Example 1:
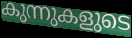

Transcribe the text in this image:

കുന്നുകളുടെ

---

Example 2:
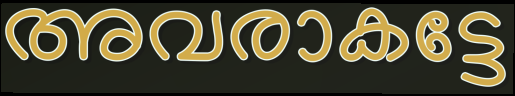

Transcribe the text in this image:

അവരാകട്ടേ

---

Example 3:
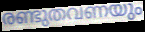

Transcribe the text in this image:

രണ്ടുതവണയും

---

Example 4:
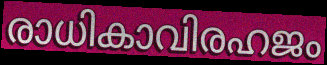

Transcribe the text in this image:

രാധികാവിരഹജം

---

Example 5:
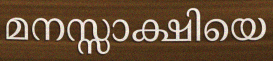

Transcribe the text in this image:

മനസ്സാക്ഷിയെ